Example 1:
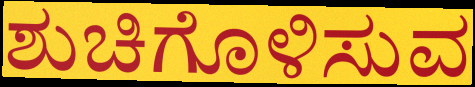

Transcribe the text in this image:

ಶುಚಿಗೊಳಿಸುವ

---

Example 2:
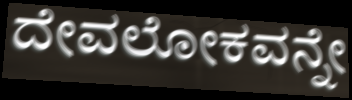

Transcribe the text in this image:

ದೇವಲೋಕವನ್ನೇ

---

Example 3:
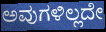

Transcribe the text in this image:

ಅವುಗಳಿಲ್ಲದೇ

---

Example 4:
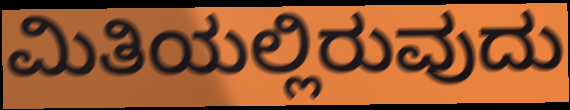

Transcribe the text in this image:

ಮಿತಿಯಲ್ಲಿರುವುದು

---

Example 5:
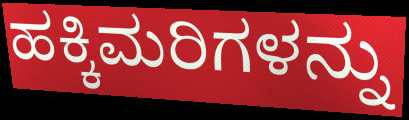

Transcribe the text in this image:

ಹಕ್ಕಿಮರಿಗಳನ್ನು